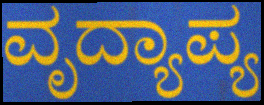
ವೃದ್ಯಾಪ್ಯ